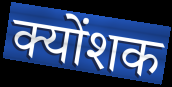
क्योंशक